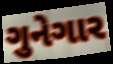
ગુનેગાર